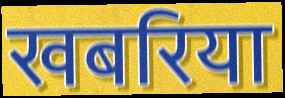
खबरिया